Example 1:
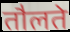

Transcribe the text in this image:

तौलते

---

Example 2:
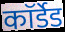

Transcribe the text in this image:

कॉर्डेड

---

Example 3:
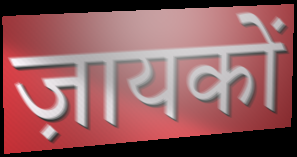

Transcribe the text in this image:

ज़ायकों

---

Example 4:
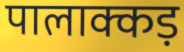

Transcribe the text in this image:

पालाक्कड़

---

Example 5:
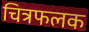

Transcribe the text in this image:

चित्रफलक